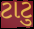
ટાટુ